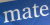
mate